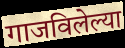
गाजविलेल्या